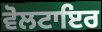
ਵੋਲਟਾਇਰ